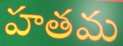
హతమ